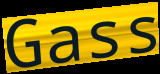
Gass